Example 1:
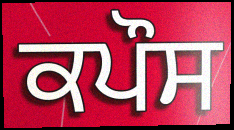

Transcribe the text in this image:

ਕਪੌਸ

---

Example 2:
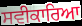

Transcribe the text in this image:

ਸਵੀਕਾਰਿਆ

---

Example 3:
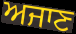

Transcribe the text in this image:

ਅਜਾਣ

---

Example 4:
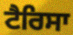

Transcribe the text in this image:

ਟੈਰਿਸਾ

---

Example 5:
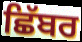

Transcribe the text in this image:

ਛਿੱਬਰ